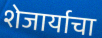
शेजार्याचा